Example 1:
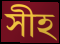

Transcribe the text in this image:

সীহ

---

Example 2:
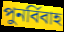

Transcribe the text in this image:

পুনৰ্বিবাহ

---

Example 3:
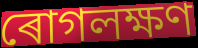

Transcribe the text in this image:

ৰোগলক্ষণ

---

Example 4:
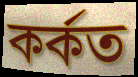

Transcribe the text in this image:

কৰ্কত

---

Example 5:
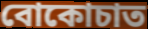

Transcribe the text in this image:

বোকোচাত